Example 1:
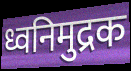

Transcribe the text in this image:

ध्वनिमुद्रक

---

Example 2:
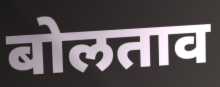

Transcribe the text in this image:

बोलताव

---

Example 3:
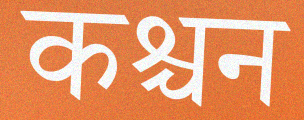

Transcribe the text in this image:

कश्चन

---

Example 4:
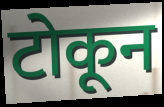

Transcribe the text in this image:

टोकून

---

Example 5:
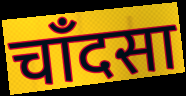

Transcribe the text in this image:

चाँदसा